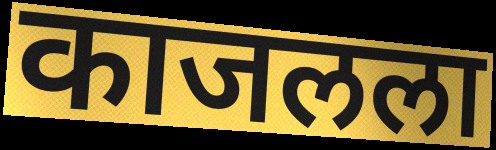
काजलला